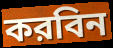
করবিন